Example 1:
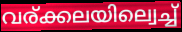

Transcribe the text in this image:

വര്ക്കലയില്വെച്ച്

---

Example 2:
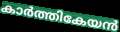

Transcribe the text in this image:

കാർത്തികേയൻ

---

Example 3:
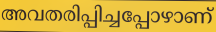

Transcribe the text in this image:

അവതരിപ്പിച്ചപ്പോഴാണ്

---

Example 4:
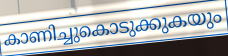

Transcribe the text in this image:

കാണിച്ചുകൊടുക്കുകയും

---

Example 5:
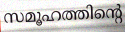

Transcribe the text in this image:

സമൂഹത്തിന്റെ